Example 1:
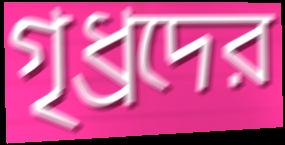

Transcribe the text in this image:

গৃধ্রদের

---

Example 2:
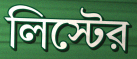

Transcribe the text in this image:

লিস্টের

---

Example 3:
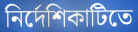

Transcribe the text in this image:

নির্দেশিকাটিতে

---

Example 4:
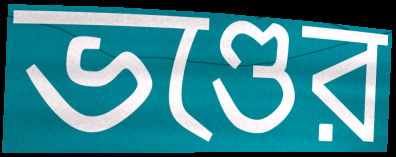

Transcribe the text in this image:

ভণ্ডের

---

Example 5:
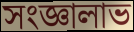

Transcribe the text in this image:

সংজ্ঞালাভ